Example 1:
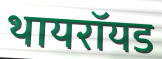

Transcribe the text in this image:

थायरॉयड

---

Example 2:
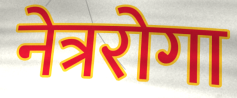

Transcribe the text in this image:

नेत्ररोगा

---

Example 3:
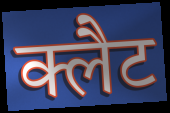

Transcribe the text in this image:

क्लैट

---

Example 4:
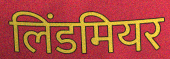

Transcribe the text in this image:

लिंडमियर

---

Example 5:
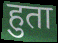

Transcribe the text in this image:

हुता